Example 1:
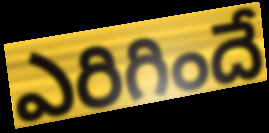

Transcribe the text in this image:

ఎరిగిందే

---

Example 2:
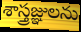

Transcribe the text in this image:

శాస్త్రజ్ఞులను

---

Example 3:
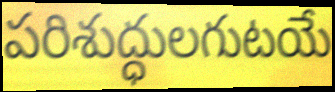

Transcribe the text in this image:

పరిశుద్ధులగుటయే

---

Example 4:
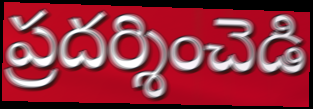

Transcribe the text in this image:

ప్రదర్శించెడి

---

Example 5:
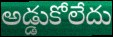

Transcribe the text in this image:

అడ్డుకోలేదు